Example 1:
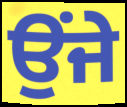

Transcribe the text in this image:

ਉਂਜੇ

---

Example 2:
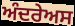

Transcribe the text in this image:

ਅੰਦਰੇਅਸ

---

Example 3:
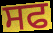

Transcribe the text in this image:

ਸਫ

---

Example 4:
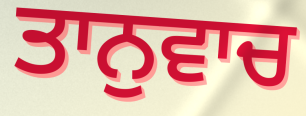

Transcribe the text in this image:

ਤਾਨੁਵਾਚ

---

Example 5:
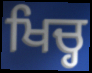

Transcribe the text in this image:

ਖਿਚ੍ਹ